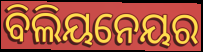
ବିଲିୟନେୟର